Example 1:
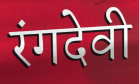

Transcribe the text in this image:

रंगदेवी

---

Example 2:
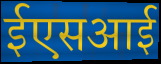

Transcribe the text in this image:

ईएसआई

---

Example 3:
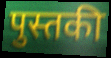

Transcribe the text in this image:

पुस्तकी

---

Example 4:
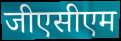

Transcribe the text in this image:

जीएसीएम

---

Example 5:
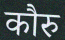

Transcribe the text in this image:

कौरु